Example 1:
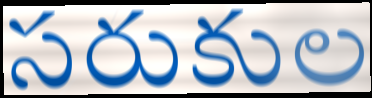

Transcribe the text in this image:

సరుకుల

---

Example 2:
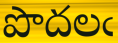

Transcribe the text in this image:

పొదలఁ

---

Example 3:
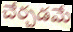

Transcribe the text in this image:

చేర్చడమే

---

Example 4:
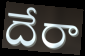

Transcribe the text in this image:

దేరా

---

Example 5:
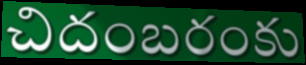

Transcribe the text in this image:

చిదంబరంకు